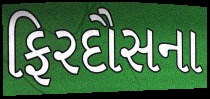
ફિરદૌસના